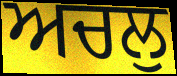
ਅਚਲੁ